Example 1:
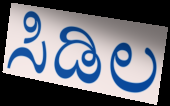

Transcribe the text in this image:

ಸಿಡಿಲ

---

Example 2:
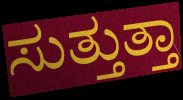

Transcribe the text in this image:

ಸುತ್ತುತ್ತಾ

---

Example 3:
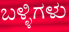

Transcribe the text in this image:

ಬಳ್ಳಿಗಳು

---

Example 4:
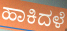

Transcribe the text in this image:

ಹಾಕಿದಳೆ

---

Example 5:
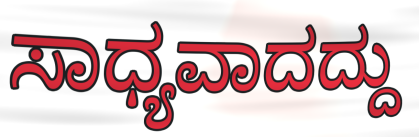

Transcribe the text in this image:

ಸಾಧ್ಯವಾದದ್ದು